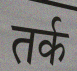
तर्क